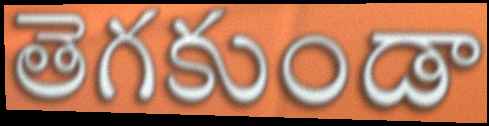
తెగకుండా